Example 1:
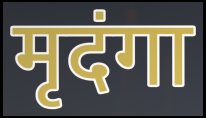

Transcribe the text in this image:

मृदंगा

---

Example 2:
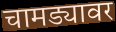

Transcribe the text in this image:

चामड्यावर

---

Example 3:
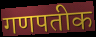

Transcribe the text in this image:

गणपतीक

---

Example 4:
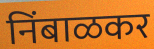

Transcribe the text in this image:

निंबाळकर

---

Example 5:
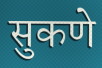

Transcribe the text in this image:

सुकणे